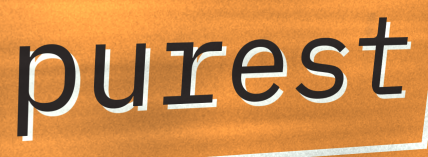
purest